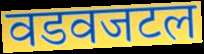
वडवजटल